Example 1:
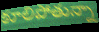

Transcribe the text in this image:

కూలిపోతున్నా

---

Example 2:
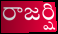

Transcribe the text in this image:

రాజర్షి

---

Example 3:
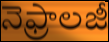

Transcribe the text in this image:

నెఫ్రాలజీ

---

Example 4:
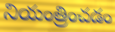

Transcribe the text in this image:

నియంత్రించడం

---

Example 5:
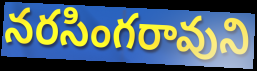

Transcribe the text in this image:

నరసింగరావుని